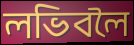
লভিবলৈ